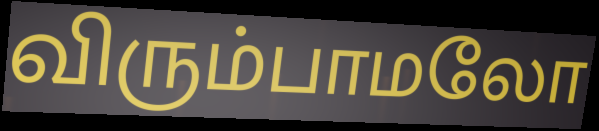
விரும்பாமலோ